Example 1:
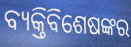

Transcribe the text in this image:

ବ୍ୟକ୍ତିବିଶେଷଙ୍କର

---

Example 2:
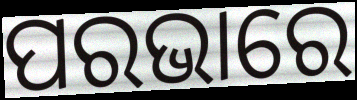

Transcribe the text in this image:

ପରଭାରେ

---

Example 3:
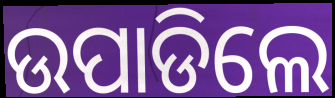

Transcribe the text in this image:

ଉପାଡିଲେ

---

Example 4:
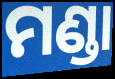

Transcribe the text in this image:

ମଣ୍ଡା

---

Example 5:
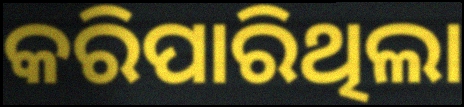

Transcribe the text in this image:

କରିପାରିଥିଲା